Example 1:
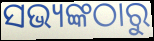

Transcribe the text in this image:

ସଭ୍ୟଙ୍କଠାରୁ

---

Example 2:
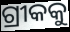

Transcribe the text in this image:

ଗ୍ରୀକକୁ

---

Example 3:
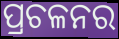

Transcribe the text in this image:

ପ୍ରଚଳନର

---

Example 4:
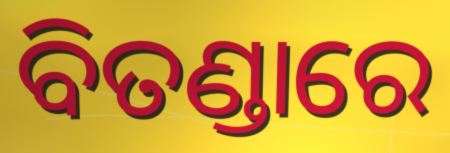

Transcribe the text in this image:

ବିତଣ୍ଡାରେ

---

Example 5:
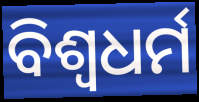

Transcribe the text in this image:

ବିଶ୍ବଧର୍ମ